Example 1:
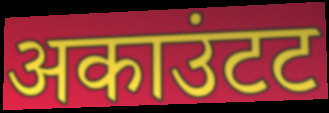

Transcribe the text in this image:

अकाउंटट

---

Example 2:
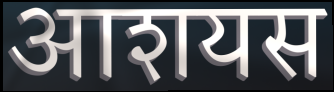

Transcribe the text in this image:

आशयस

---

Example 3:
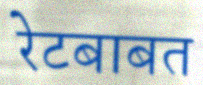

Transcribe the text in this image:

रेटबाबत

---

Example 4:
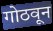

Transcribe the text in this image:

गोठवून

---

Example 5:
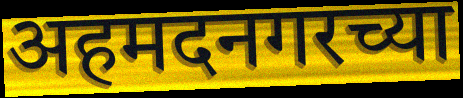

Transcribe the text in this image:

अहमदनगरच्या